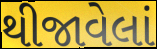
થીજાવેલાં